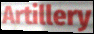
Artillery